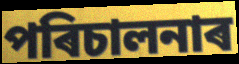
পৰিচালনাৰ